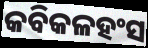
କବିକଳହଂସ